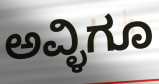
ಅವ್ಳಿಗೂ